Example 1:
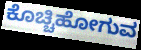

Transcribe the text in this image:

ಕೊಚ್ಚಿಹೋಗುವ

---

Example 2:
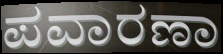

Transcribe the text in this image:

ಪವಾರಣಾ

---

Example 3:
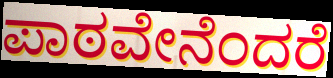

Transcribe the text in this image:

ಪಾಠವೇನೆಂದರೆ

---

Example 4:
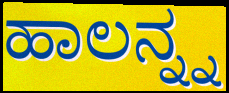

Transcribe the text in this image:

ಹಾಲನ್ನ್ನ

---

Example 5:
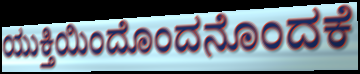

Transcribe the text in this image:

ಯುಕ್ತಿಯಿಂದೊಂದನೊಂದಕೆ